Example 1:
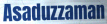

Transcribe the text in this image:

Asaduzzaman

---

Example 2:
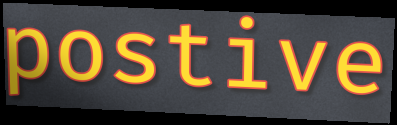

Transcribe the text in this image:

postive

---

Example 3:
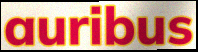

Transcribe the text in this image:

auribus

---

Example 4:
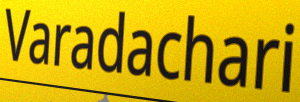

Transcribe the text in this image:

Varadachari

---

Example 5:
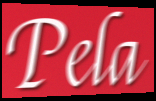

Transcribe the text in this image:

Pela